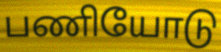
பணியோடு